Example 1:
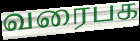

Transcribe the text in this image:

வரைபக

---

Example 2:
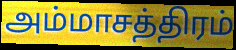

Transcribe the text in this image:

அம்மாசத்திரம்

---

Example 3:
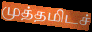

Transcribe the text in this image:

முத்தமிடச்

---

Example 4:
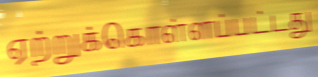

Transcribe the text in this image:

ஏற்றுக்கொள்ளப்பட்டது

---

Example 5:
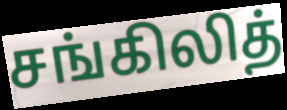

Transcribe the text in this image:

சங்கிலித்